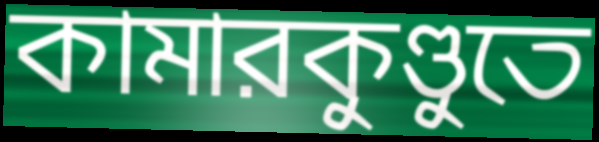
কামারকুণ্ডুতে